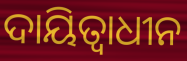
ଦାୟିତ୍ଵାଧୀନ